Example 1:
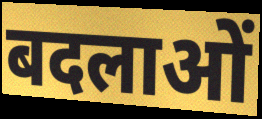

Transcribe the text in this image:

बदलाओं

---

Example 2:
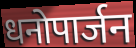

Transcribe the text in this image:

धनोपार्जन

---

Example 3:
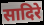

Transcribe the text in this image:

सादिरे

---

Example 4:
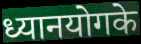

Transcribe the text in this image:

ध्यानयोगके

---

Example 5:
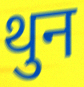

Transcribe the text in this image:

थुन